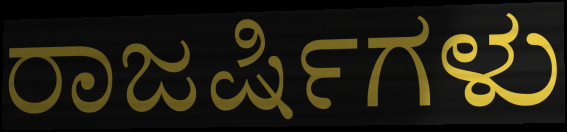
ರಾಜರ್ಷಿಗಳು